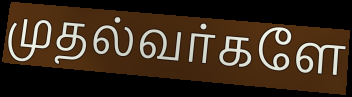
முதல்வர்களே